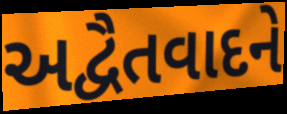
અદ્વૈતવાદને